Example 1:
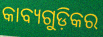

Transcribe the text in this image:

କାବ୍ୟଗୁଡ଼ିକର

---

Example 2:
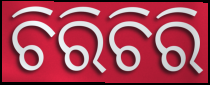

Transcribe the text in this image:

ଚିରିଚିରି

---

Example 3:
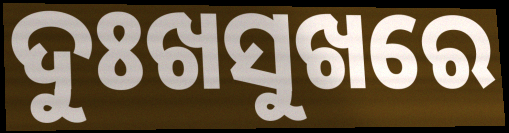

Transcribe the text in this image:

ଦୁଃଖସୁଖରେ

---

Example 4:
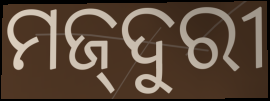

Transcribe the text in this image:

ମଜ୍‌ଦୁରୀ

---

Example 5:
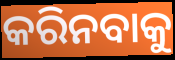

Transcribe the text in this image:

କରିନବାକୁ